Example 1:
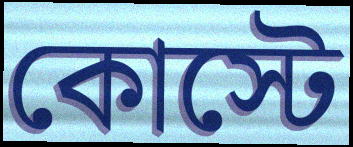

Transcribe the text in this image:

কোস্টে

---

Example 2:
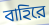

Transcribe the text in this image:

বাহিরে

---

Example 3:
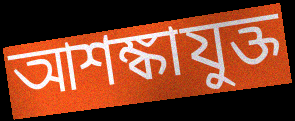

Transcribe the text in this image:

আশঙ্কাযুক্ত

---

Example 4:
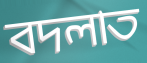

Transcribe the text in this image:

বদলাত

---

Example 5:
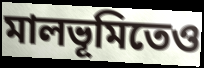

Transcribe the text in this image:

মালভূমিতেও